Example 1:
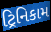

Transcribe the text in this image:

ટ્રિનિકામ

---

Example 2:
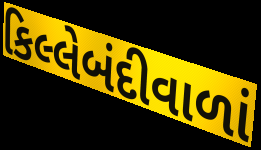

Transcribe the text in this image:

કિલ્લેબંદીવાળાં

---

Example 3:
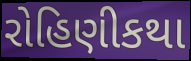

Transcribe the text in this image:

રોહિણીકથા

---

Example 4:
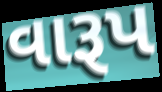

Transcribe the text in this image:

વારૂપ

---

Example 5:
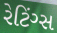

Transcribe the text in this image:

રેટિંગ્સ